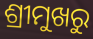
ଶ୍ରୀମୁଖରୁ